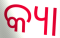
କ୍ୟା